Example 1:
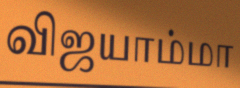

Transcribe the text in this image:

விஜயாம்மா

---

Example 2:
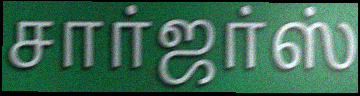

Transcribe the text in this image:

சார்ஜர்ஸ்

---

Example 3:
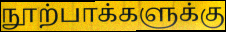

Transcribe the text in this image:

நூற்பாக்களுக்கு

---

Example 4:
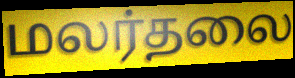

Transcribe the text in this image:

மலர்தலை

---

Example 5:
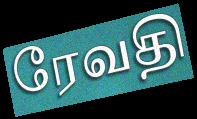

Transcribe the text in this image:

ரேவதி